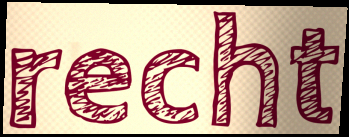
recht